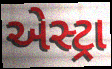
એસ્ટ્રા